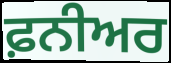
ਫ਼ਨੀਅਰ